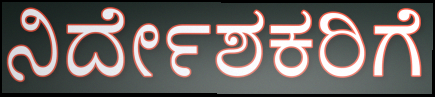
ನಿರ್ದೇಶಕರಿಗೆ